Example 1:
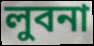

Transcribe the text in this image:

লুবনা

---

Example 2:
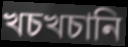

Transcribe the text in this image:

খচখচানি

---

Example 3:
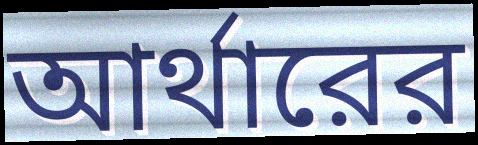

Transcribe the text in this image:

আর্থারের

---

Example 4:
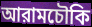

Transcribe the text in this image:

আরামচৌকি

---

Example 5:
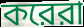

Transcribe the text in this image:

করেরা